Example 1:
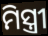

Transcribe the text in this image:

ମିସ୍ତ୍ରୀ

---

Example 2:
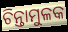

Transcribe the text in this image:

ଚିନ୍ତାମୁଳକ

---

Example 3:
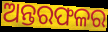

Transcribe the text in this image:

ଅନ୍ତରଫଳର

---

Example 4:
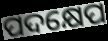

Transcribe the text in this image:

ପଦକ୍ଷେପ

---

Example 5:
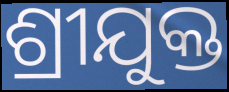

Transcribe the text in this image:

ଶ୍ରୀଯୁକ୍ତ